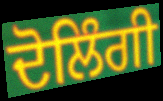
ਦੋਲਿੰਗੀ